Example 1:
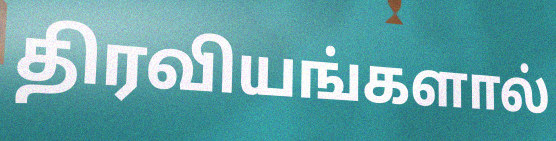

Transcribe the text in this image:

திரவியங்களால்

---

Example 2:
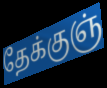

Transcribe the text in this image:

தேக்குஞ்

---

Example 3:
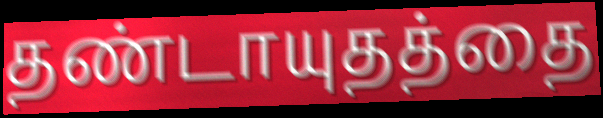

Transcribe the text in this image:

தண்டாயுதத்தை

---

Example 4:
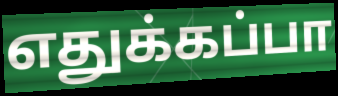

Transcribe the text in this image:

எதுக்கப்பா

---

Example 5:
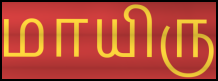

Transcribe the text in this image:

மாயிரு